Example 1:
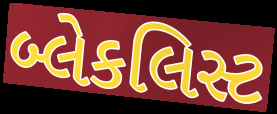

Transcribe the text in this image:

બ્લેકલિસ્ટ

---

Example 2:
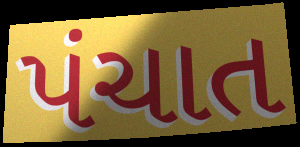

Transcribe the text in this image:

પંચાત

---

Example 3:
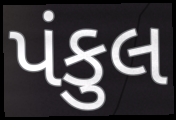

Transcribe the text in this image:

પંકુલ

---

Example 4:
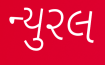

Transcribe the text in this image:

ન્યુરલ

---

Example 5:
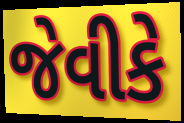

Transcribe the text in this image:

જેવીકે